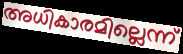
അധികാരമില്ലെന്ന്